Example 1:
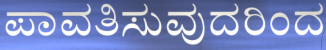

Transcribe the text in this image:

ಪಾವತಿಸುವುದರಿಂದ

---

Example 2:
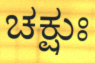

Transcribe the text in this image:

ಚಕ್ಷುಃ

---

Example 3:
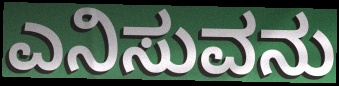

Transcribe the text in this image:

ಎನಿಸುವನು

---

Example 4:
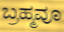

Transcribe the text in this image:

ಬ್ರಹ್ಮವೂ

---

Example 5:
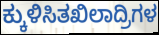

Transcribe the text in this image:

ಕ್ಕುಳಿಸಿತಖಿಲಾದ್ರಿಗಳ